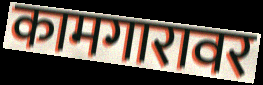
कामगारावर